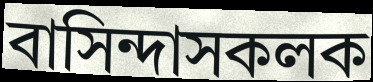
বাসিন্দাসকলক